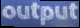
output